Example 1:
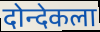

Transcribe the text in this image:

दोन्देकला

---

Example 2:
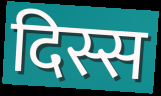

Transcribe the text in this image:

दिस्स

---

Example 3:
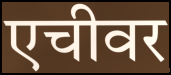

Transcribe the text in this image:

एचीवर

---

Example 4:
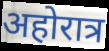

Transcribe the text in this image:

अहोरात्र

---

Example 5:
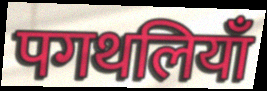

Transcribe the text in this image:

पगथलियाँ